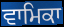
ਵਾਮਿਕਾ